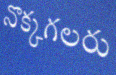
నొక్కగలరు